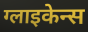
ग्लाइकेन्स